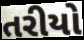
તરીયો